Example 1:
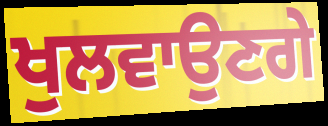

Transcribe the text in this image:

ਖੁਲਵਾਉਣਗੇ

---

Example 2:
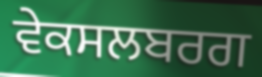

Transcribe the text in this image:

ਵੇਕਸਲਬਰਗ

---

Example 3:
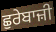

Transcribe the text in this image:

ਛੁਰੇਬਾਜ਼ੀ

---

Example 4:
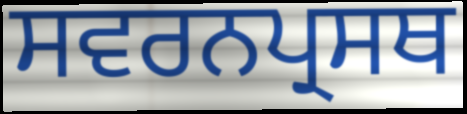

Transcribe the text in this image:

ਸਵਰਨਪ੍ਰਸਥ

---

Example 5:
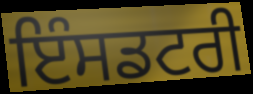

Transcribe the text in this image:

ਇੰਸਡਟਰੀ